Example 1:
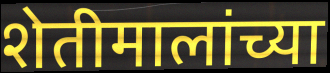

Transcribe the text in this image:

शेतीमालांच्या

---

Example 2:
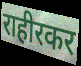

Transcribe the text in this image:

राहीरकर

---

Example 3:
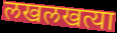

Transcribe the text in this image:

लखलखत्या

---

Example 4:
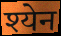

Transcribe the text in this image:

श्येन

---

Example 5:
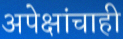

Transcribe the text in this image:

अपेक्षांचाही